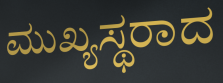
ಮುಖ್ಯಸ್ಥರಾದ